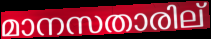
മാനസതാരില്